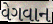
વેગવાન